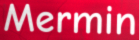
Mermin